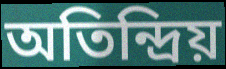
অতিন্দ্রিয়